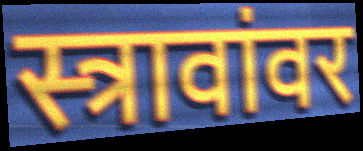
स्त्रावांवर